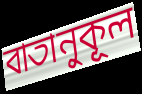
বাতানুকূল